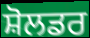
ਸ਼ੋਲਡਰ